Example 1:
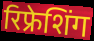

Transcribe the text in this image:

रिफ्रेशिंग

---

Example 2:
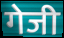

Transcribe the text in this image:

गेजी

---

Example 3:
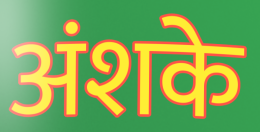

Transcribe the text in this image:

अंशके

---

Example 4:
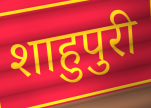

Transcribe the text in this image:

शाहुपुरी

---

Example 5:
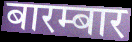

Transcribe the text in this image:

बारम्‍बार